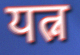
यत्न